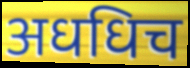
अधधिच